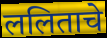
ललिताचे